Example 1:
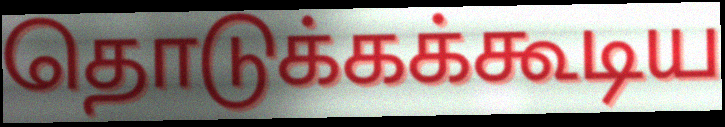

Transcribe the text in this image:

தொடுக்கக்கூடிய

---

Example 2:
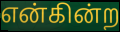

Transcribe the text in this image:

என்கின்ற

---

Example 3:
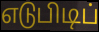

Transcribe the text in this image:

எடுபிடிப்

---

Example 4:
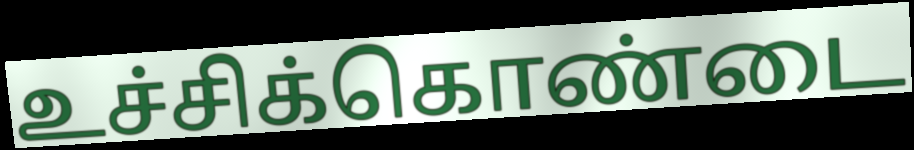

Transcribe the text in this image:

உச்சிக்கொண்டை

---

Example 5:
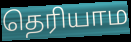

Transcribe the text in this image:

தெரியாம